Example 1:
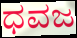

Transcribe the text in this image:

ಧವಜ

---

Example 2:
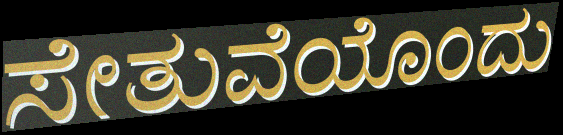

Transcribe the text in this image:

ಸೇತುವೆಯೊಂದು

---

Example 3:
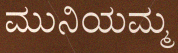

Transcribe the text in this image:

ಮುನಿಯಮ್ಮ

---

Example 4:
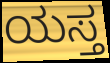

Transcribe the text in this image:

ಯಸ್ತ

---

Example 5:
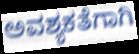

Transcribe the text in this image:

ಅವಶ್ಯಕತೆಗಾಗಿ